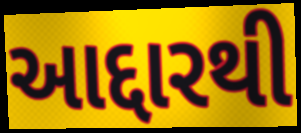
આદ્દારથી